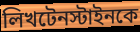
লিখটেনস্টাইনকে